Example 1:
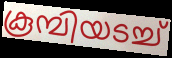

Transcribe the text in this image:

കൂമ്പിയടച്ച്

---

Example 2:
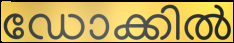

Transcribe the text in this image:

ഡോക്കിൽ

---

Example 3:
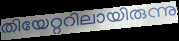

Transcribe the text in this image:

തിയേറ്ററിലായിരുന്നു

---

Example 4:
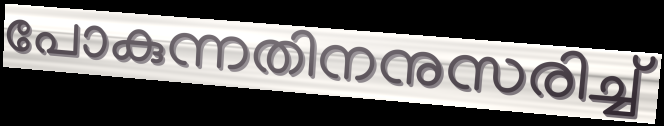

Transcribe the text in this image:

പോകുന്നതിനനുസരിച്ച്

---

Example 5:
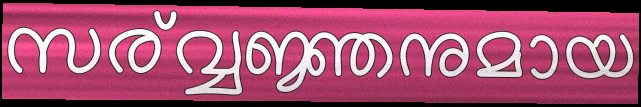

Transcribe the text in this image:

സര്വ്വജ്ഞനുമായ